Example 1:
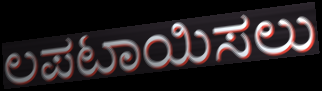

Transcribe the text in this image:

ಲಪಟಾಯಿಸಲು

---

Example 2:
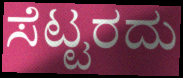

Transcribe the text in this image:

ಸೆಟ್ಟರದು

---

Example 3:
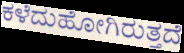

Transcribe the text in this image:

ಕಳೆದುಹೋಗಿರುತ್ತದೆ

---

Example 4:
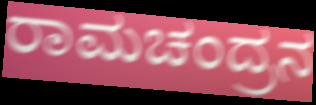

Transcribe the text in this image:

ರಾಮಚಂದ್ರನ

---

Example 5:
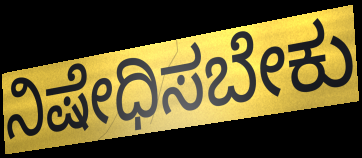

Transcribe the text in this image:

ನಿಷೇಧಿಸಬೇಕು